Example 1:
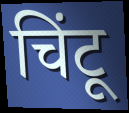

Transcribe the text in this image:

चिंटू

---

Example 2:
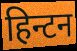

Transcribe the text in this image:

हिन्टन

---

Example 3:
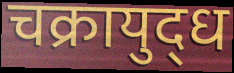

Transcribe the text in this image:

चक्रायुद्ध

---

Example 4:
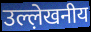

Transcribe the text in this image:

उल्ल़ेखनीय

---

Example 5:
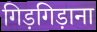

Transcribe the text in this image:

गिड़गिड़ाना